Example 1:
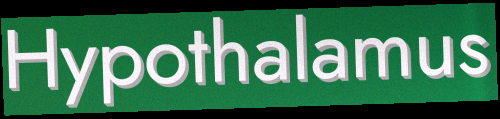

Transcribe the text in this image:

Hypothalamus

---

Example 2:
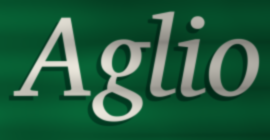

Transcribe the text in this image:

Aglio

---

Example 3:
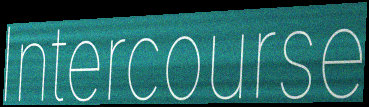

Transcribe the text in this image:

Intercourse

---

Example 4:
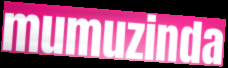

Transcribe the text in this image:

mumuzinda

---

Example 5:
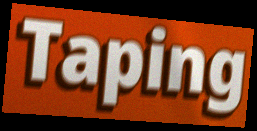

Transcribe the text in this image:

Taping